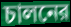
চালনের